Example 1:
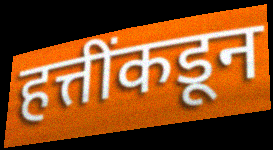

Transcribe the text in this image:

हत्तींकडून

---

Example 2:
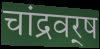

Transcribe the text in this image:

चांद्रवर्ष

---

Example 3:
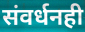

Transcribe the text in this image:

संवर्धनही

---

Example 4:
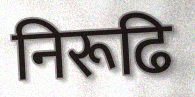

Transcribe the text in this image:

निरूढि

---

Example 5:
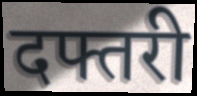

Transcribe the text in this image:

दफ्तरी